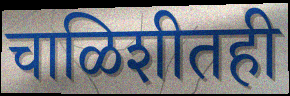
चाळिशीतही